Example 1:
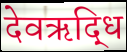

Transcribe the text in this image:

देवऋद्धि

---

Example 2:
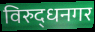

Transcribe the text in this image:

विरुद्धनगर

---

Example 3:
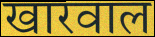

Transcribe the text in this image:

खारवाल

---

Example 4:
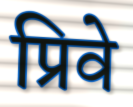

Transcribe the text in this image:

प्रिवे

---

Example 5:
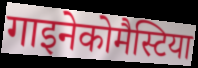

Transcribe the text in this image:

गाइनेकोमैस्टिया